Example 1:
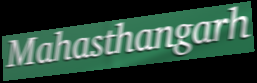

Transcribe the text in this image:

Mahasthangarh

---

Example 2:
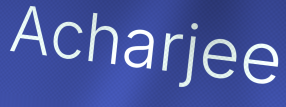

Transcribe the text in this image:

Acharjee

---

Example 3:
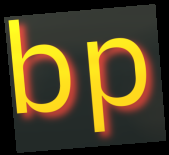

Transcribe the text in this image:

bp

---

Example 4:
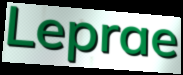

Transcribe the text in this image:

Leprae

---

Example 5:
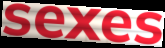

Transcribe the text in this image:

sexes